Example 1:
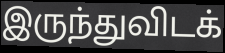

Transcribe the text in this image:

இருந்துவிடக்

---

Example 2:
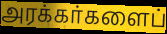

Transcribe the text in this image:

அரக்கர்களைப்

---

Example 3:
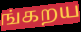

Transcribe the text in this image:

ங்கறய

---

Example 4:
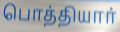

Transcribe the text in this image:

பொத்தியார்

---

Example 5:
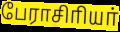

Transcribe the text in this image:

பேராசிரியர்